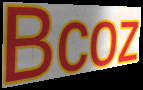
Bcoz